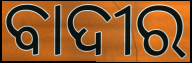
ବାଦୀର